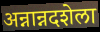
अन्नान्नदशेला